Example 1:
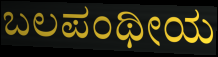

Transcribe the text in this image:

ಬಲಪಂಥೀಯ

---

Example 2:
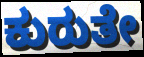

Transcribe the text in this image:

ಕುರುತೇ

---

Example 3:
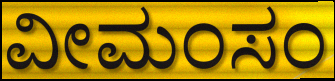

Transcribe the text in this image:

ವೀಮಂಸಂ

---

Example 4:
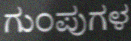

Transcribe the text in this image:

ಗುಂಪುಗಳ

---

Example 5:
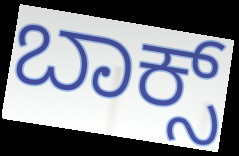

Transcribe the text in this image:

ಬಾಕ್ಸ್